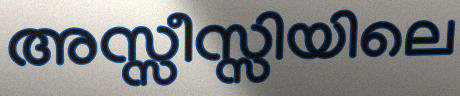
അസ്സീസ്സിയിലെ